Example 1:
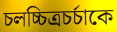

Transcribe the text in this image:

চলচ্চিত্রচর্চাকে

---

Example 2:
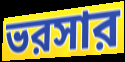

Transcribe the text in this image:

ভরসার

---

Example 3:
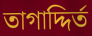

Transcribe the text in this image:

তাগাদ্দির্ত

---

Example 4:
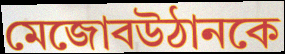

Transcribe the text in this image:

মেজোবউঠানকে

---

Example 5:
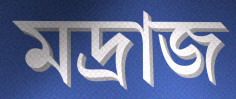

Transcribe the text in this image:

মদ্রাজ